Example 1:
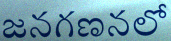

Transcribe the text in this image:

జనగణనలో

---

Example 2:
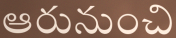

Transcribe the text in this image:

ఆరునుంచి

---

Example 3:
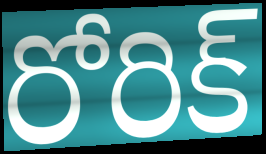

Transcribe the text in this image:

రోరిక్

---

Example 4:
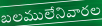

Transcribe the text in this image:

బలములేనివారల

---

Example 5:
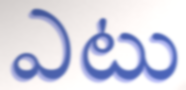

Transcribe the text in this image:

ఎటు